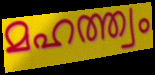
മഹത്ത്വം